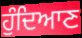
ਹੁੰਦਿਆਣ